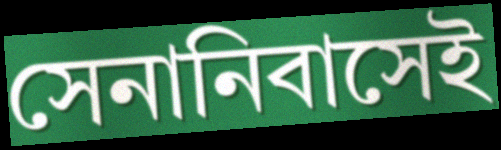
সেনানিবাসেই